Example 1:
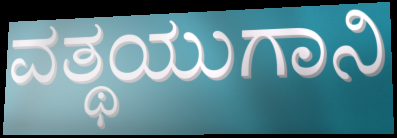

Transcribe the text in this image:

ವತ್ಥಯುಗಾನಿ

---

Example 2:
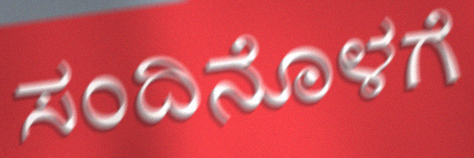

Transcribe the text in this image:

ಸಂದಿನೊಳಗೆ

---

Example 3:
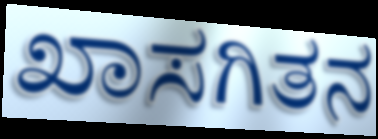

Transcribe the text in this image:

ಖಾಸಗಿತನ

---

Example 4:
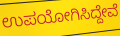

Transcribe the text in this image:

ಉಪಯೋಗಿಸಿದ್ದೇವೆ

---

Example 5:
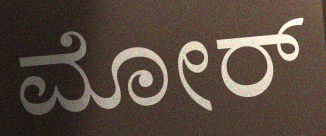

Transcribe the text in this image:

ಮೋರ್